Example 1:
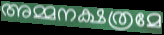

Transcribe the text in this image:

അമ്മനക്ഷത്രമേ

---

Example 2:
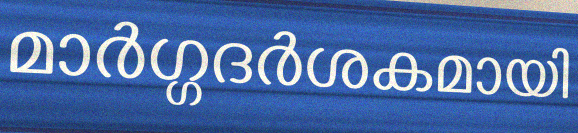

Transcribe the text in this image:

മാർഗ്ഗദർശകമായി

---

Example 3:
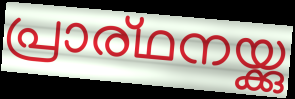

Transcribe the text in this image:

പ്രാര്ഥനയ്ക്കു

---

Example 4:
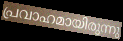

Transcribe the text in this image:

പ്രവാഹമായിരുന്നു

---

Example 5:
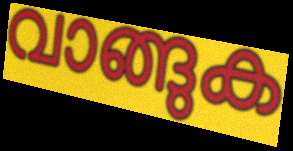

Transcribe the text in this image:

വാങ്ങുക